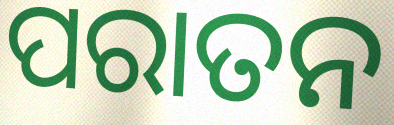
ପରାତନ